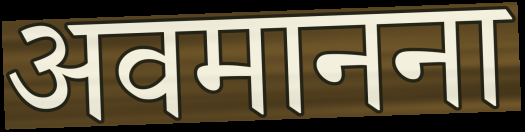
अवमानना